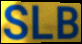
SLB